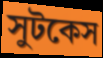
সুটকেস